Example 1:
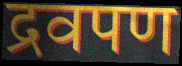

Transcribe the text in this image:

द्रवपण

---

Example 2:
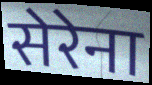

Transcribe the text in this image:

सेरेना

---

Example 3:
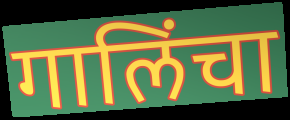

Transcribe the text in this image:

गालिंचा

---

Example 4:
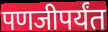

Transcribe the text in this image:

पणजीपर्यंत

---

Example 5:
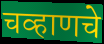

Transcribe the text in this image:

चव्हाणचे